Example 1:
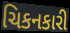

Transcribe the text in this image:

ચિકનકારી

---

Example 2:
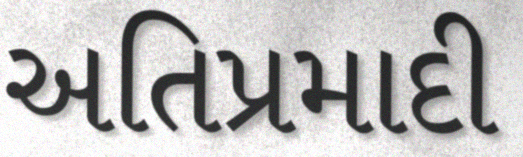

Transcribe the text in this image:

અતિપ્રમાદી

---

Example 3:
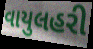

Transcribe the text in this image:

વાયુલહરી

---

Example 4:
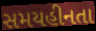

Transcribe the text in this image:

સમયહીનતા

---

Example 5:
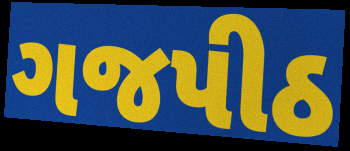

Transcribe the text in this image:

ગજપીઠ